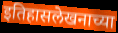
इतिहासलेखनाच्या